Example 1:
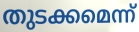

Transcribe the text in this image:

തുടക്കമെന്ന്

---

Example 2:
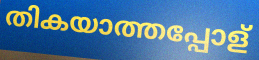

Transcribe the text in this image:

തികയാത്തപ്പോള്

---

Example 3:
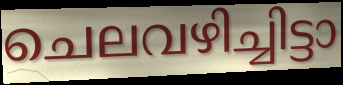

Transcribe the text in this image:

ചെലവഴിച്ചിട്ടാ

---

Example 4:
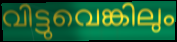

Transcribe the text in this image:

വിട്ടുവെങ്കിലും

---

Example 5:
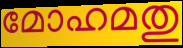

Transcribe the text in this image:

മോഹമതു